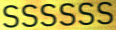
SSSSSS